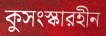
কুসংস্কারহীন